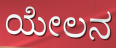
ಯೇಲನ